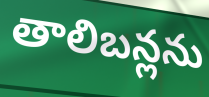
తాలిబన్లను